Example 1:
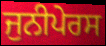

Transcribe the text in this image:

ਜੁਨੀਪੇਰਸ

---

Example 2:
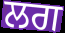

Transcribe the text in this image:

ਲਗ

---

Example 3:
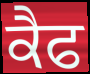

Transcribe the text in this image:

ਕੈਫ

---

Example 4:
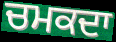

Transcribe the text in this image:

ਚਮਕਦਾ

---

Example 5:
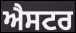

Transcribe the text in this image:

ਐਸਟਰ